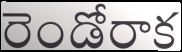
రెండోరాక